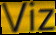
Viz